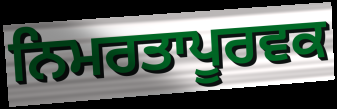
ਨਿਮਰਤਾਪੂਰਵਕ